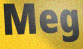
Meg